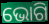
ଭୋଗି